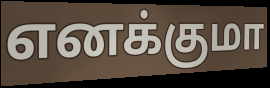
எனக்குமா